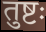
तुष्टः